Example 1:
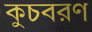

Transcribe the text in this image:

কুচবরণ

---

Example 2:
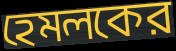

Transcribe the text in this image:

হেমলকের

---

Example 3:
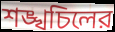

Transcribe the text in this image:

শঙ্খচিলের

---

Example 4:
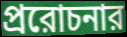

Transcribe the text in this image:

প্ররোচনার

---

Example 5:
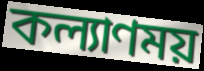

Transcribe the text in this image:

কল্যাণময়